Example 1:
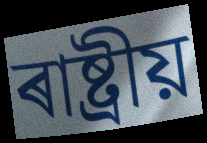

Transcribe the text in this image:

ৰাষ্ট্ৰীয়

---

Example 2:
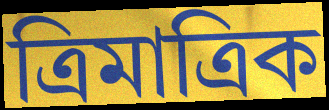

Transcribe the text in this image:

ত্ৰিমাত্ৰিক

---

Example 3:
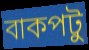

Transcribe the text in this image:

বাকপটু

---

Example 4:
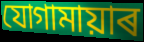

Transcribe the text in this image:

যোগামায়াৰ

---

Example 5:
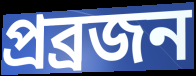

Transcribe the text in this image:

প্ৰব্ৰজন